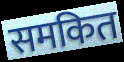
समकित